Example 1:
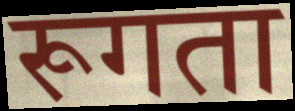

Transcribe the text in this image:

रूगता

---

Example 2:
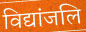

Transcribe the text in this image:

विद्यांजलि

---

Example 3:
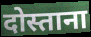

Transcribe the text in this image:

दोस्ताना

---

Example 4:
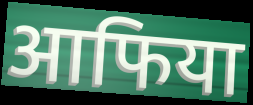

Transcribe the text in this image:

आफिया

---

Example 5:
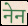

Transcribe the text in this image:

नेन